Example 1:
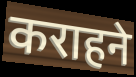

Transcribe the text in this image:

कराहने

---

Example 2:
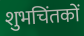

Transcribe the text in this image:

शुभचिंतकों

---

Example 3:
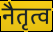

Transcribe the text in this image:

नैतृत्व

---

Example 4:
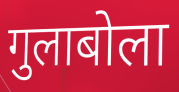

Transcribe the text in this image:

गुलाबोला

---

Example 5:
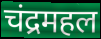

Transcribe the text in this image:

चंद्रमहल